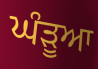
ਘੰੜੂਆ